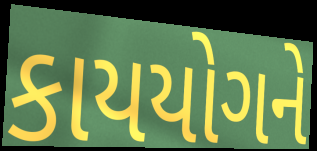
કાયયોગને